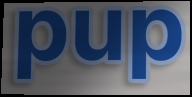
pup